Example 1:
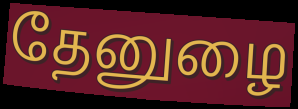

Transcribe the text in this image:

தேனுழை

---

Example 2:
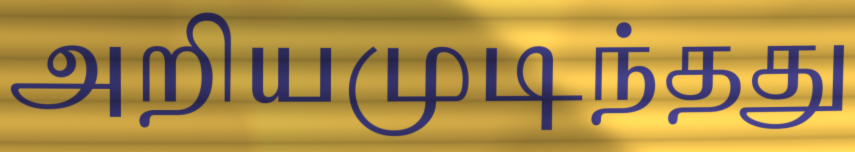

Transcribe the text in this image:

அறியமுடிந்தது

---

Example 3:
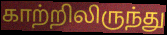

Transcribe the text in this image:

காற்றிலிருந்து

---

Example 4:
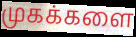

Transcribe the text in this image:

முகக்களை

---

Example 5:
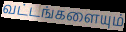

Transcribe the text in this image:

வட்டங்களையும்